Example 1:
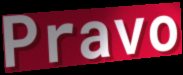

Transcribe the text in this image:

Pravo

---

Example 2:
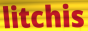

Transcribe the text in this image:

litchis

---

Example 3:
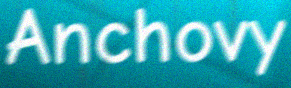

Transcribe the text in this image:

Anchovy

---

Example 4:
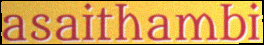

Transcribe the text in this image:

asaithambi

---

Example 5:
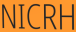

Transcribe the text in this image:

NICRH